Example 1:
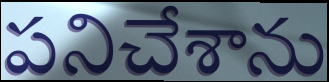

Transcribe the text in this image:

పనిచేశాను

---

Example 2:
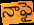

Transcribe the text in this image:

నాఫై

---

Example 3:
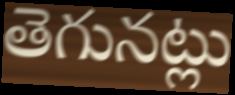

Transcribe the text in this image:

తెగునట్లు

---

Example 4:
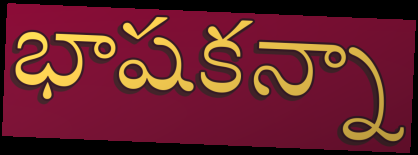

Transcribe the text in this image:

భాషకన్నా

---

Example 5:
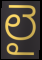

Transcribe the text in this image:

లై